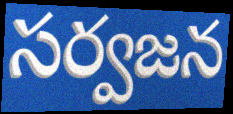
సర్వజన